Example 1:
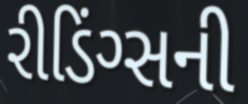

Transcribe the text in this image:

રીડિંગ્સની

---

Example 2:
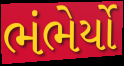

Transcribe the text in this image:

ભંભેર્યો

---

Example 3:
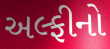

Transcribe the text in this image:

અલ્ફીનો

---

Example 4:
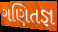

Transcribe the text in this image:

ગણિતજ્ઞ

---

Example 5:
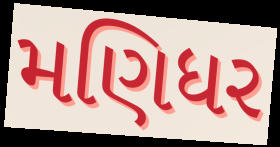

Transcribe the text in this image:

મણિધર